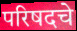
परिषदचे